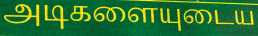
அடிகளையுடைய